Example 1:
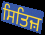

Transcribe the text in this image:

ਸਿਤਿਜ਼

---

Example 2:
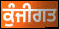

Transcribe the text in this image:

ਕੁੰਜੀਗਤ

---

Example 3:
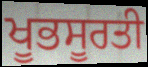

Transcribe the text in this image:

ਖੂਭਸੂਰਤੀ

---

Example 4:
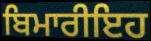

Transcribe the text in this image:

ਬਿਮਾਰੀਇਹ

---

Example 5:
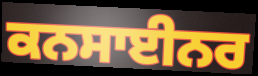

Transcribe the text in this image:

ਕਨਸਾਈਨਰ